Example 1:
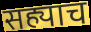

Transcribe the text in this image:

सह्याच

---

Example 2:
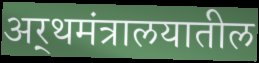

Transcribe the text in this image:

अर्थमंत्रालयातील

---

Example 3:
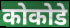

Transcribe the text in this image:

कोकोडे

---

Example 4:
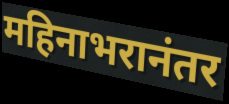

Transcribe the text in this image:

महिनाभरानंतर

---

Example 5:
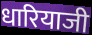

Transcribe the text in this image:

धारियाजी